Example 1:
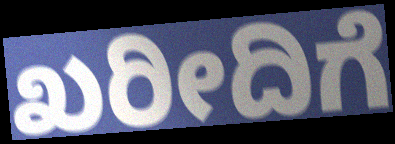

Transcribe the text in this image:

ಖರೀದಿಗೆ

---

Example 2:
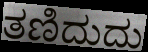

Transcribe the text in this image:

ತಣಿದುದು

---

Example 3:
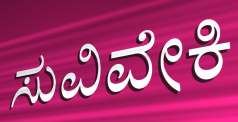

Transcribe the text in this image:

ಸುವಿವೇಕಿ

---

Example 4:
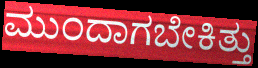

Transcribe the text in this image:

ಮುಂದಾಗಬೇಕಿತ್ತು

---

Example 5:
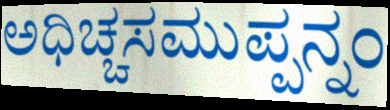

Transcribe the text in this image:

ಅಧಿಚ್ಚಸಮುಪ್ಪನ್ನಂ